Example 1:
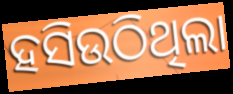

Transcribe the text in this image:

ହସିଉଠିଥିଲା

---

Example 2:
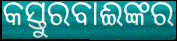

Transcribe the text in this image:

କସ୍ତୁରବାଈଙ୍କର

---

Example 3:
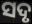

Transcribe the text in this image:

ସଦୃ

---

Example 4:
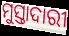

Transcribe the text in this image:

ମୁସ୍ତାଦାରୀ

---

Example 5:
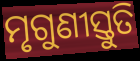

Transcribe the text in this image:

ମୃଗୁଣୀସ୍ତୁତି